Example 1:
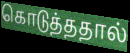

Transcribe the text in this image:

கொடுத்ததால்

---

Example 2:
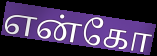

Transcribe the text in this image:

என்கோ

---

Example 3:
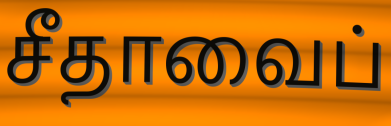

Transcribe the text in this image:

சீதாவைப்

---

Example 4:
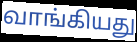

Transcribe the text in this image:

வாங்கியது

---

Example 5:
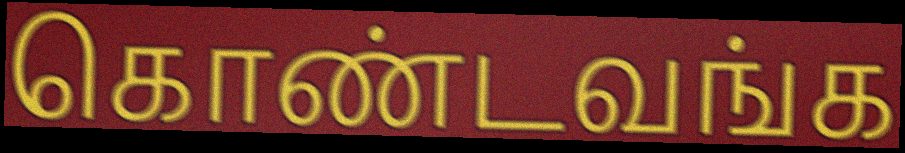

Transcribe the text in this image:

கொண்டவங்க